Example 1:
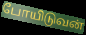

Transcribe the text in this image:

போயிடுவன்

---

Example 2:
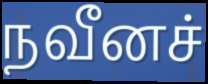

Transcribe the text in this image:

நவீனச்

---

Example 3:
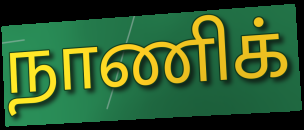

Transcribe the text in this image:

நாணிக்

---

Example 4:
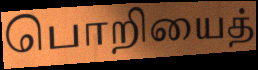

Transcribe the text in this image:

பொறியைத்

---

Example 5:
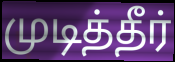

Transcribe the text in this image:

முடித்தீர்